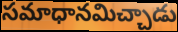
సమాధానమిచ్చాడు